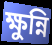
ক্ষুন্নি